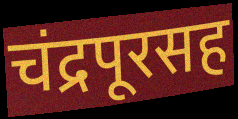
चंद्रपूरसह